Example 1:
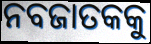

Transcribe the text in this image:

ନବଜାତକକୁ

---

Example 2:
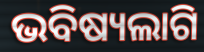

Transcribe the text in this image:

ଭବିଷ୍ୟଲାଗି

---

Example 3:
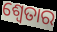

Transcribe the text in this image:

ଶ୍ଵେତାର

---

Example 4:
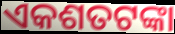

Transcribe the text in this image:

ଏକଶତଟଙ୍କା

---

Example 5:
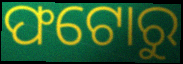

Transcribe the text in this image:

ଫଟୋରୁ